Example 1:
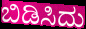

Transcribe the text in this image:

ಬಿಡಿಸಿದು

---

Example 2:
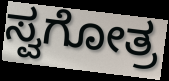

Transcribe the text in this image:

ಸ್ವಗೋತ್ರ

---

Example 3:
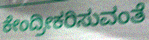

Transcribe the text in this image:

ಕೇಂದ್ರೀಕರಿಸುವಂತೆ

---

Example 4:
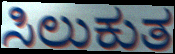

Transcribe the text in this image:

ಸಿಲುಕುತ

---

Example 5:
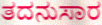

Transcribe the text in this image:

ತದನುಸಾರ